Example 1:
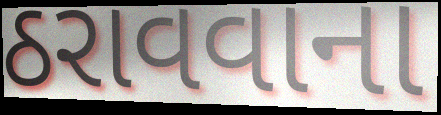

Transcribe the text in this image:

ઠરાવવાના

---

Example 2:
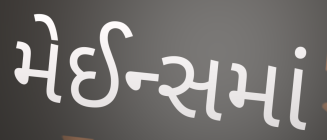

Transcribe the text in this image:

મેઈન્સમાં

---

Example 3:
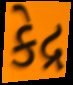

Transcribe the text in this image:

કેદ્ર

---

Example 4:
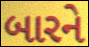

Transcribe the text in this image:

બારને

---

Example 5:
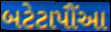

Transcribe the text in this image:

બટેટાપૌંઆ